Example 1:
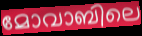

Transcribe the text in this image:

മോവാബിലെ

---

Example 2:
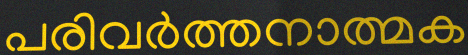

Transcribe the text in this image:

പരിവർത്തനാത്മക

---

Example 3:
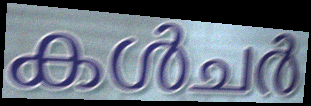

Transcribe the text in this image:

കൾചർ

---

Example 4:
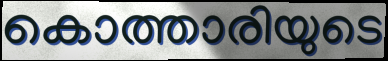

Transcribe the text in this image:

കൊത്താരിയുടെ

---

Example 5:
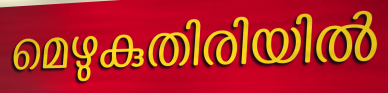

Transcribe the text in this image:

മെഴുകുതിരിയിൽ